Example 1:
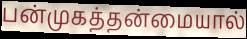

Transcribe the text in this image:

பன்முகத்தன்மையால்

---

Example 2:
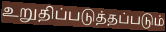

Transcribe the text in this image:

உறுதிப்படுத்தப்படும்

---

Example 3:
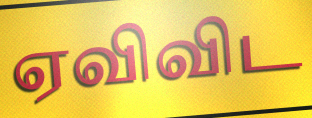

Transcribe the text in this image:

ஏவிவிட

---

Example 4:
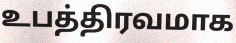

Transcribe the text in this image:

உபத்திரவமாக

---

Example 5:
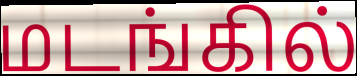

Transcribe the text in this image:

மடங்கில்